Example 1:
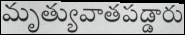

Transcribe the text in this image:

మృత్యువాతపడ్డారు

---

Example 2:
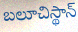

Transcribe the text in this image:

బలూచిస్థాన్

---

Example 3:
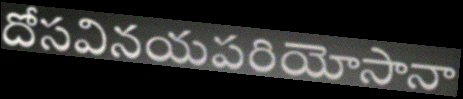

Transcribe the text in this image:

దోసవినయపరియోసానా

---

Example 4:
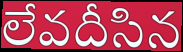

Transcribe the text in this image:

లేవదీసిన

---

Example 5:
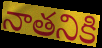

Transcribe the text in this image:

నాతనికి